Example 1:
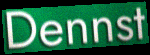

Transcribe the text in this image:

Dennst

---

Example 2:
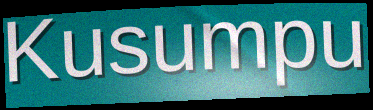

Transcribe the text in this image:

Kusumpu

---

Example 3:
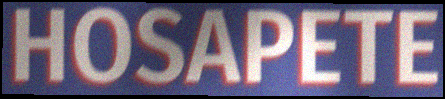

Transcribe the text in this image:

HOSAPETE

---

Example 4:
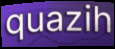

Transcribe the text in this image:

quazih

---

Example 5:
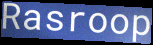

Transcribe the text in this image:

Rasroop